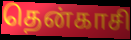
தென்காசி